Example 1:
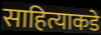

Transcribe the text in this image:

साहित्याकडे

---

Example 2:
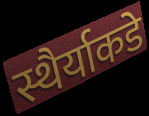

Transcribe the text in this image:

स्थैर्याकडे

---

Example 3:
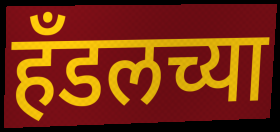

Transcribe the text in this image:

हॅंडलच्या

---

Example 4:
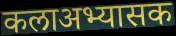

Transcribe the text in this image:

कलाअभ्यासक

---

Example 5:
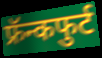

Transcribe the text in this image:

फ्रॅन्कफुर्ट